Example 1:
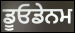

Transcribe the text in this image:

ਡੂਓਡੇਨਮ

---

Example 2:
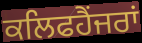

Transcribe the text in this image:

ਕਲਿਫਹੈਂਜਰਾਂ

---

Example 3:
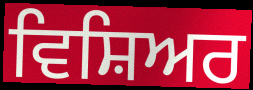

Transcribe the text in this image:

ਵਿਸ਼ਿਅਰ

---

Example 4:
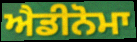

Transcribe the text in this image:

ਐਡੀਨੋਮਾ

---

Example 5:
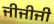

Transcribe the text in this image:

ਜੀਜੀਜੀ